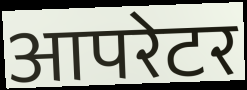
आपरेटर